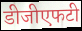
डीजीएफटी